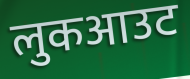
लुकआउट